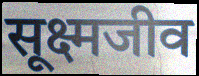
सूक्ष्मजीव